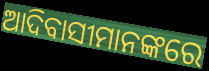
ଆଦିବାସୀମାନଙ୍କରେ